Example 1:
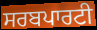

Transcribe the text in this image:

ਸਰਬਪਾਰਟੀ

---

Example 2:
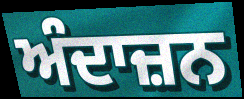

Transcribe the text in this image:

ਅੰਦਾਜ਼ਨ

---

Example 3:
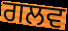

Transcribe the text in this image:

ਗਲਵ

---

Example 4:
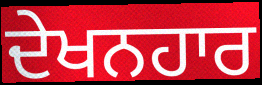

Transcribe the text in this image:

ਦੇਖਨਹਾਰ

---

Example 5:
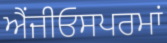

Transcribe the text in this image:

ਐਂਜੀਓਸਪਰਮਾਂ